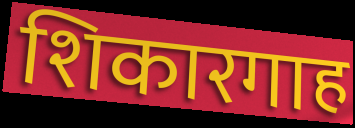
शिकारगाह